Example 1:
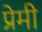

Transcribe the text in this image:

प्रेमी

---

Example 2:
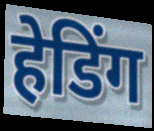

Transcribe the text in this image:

हेडिंग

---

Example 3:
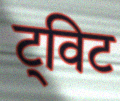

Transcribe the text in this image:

ट्विट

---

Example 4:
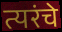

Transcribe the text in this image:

त्यरंचे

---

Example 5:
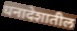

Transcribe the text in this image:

धनादेशातील